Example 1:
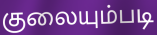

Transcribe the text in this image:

குலையும்படி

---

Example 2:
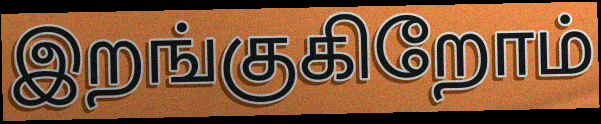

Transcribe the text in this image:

இறங்குகிறோம்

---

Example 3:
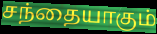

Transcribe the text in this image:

சந்தையாகும்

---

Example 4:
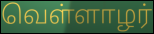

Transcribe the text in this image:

வெள்ளாழர்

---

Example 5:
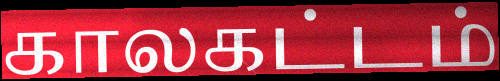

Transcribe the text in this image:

காலகட்டம்